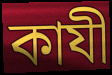
কাযী